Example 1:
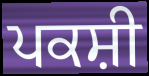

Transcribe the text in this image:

ਪਕਸ਼ੀ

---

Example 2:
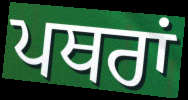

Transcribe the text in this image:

ਪਥਰਾਂ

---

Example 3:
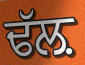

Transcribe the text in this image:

ਢੱਲ਼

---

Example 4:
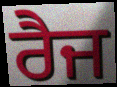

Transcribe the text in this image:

ਰੈਜ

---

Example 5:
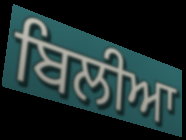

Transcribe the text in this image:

ਬਿਲੀਆ